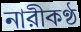
নারীকণ্ঠ